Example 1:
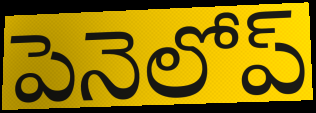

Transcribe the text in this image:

పెనెలోప్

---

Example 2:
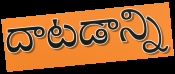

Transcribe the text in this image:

దాటడాన్ని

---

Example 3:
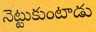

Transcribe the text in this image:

నెట్టుకుంటాడు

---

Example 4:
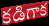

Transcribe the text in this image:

కడిగాక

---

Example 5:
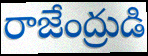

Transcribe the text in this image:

రాజేంద్రుడి